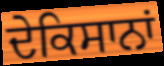
ਦੇਕਿਸਾਨਾਂ